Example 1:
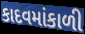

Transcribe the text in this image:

કાદવમાંકાળી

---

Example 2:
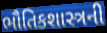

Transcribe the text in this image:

ભૌતિકશાસ્ત્રની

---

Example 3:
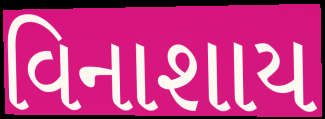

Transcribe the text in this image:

વિનાશાય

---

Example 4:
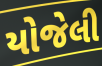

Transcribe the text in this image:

યોજેલી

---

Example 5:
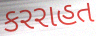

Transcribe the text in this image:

કરરાહત